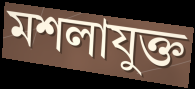
মশলাযুক্ত